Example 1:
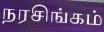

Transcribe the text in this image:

நரசிங்கம்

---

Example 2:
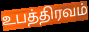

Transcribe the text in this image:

உபத்திரவம்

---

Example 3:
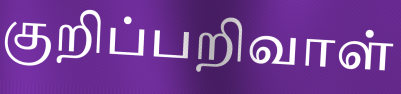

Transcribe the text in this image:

குறிப்பறிவாள்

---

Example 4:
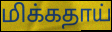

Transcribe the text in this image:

மிக்கதாய்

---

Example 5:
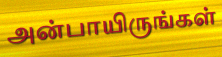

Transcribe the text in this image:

அன்பாயிருங்கள்